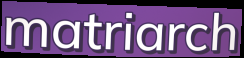
matriarch